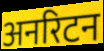
अनरिटन